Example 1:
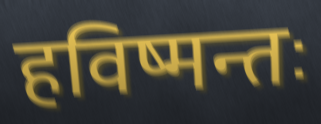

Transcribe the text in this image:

हविष्मन्तः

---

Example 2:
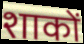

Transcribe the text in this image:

शाकों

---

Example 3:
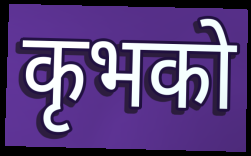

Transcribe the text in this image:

कृभको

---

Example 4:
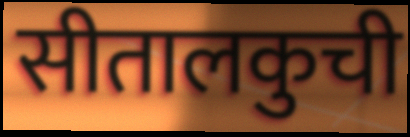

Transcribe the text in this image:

सीतालकुची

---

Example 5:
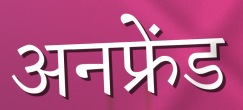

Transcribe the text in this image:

अनफ्रेंड